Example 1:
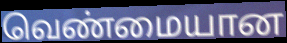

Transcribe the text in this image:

வெண்மையான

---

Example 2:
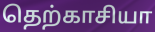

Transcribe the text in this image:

தெற்காசியா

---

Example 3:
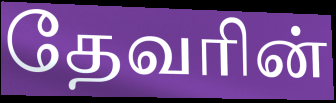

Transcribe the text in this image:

தேவரின்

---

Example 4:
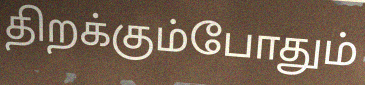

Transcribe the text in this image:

திறக்கும்போதும்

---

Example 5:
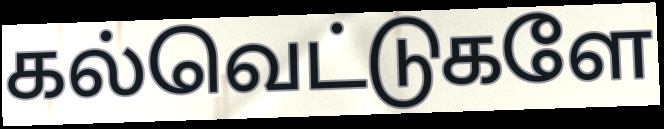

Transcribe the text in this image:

கல்வெட்டுகளே